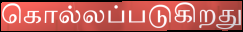
கொல்லப்படுகிறது